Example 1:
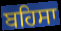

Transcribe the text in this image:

ਬਹਿਸਾ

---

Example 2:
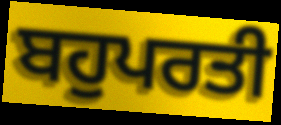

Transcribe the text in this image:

ਬਹੁਪਰਤੀ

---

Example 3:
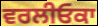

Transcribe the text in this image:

ਵਰਲੀਓਕਾ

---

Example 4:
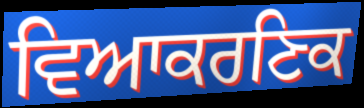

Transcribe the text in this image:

ਵਿਆਕਰਣਿਕ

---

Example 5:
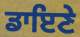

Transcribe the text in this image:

ਡਾਇਣੇ